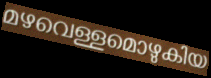
മഴവെള്ളമൊഴുകിയ